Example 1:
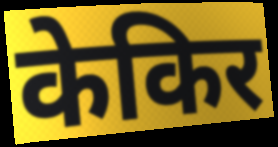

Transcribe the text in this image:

केकिर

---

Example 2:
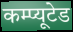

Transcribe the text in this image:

कम्प्यूटेड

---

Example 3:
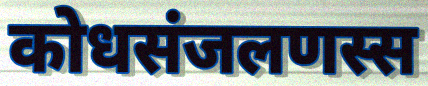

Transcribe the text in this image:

कोधसंजलणस्स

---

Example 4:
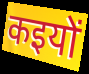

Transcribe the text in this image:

कइयों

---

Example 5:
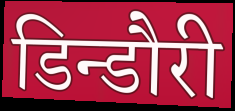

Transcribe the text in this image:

डिन्डौरी